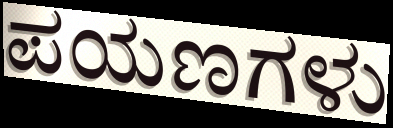
ಪಯಣಗಳು